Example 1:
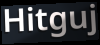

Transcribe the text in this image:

Hitguj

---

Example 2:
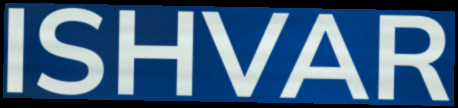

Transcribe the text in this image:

ISHVAR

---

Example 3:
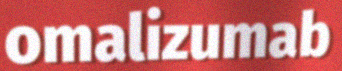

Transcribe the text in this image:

omalizumab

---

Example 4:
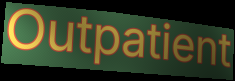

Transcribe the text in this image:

Outpatient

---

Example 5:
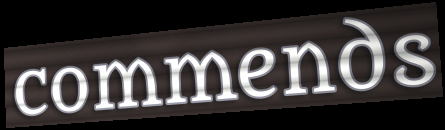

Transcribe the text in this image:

commends